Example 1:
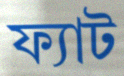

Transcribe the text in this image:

ফ্যাট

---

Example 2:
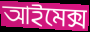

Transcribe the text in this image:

আইমেক্স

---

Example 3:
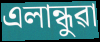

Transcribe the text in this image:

এলান্ধুৱা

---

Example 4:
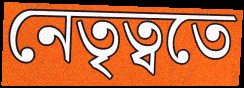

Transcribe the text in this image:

নেতৃত্বতে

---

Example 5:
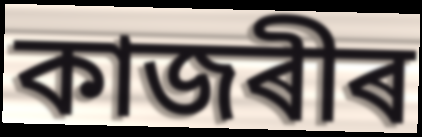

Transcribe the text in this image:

কাজৰীৰ